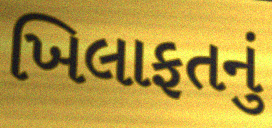
ખિલાફતનું